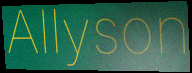
Allyson